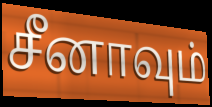
சீனாவும்